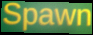
Spawn